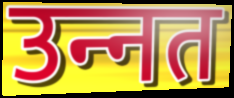
उन्नत